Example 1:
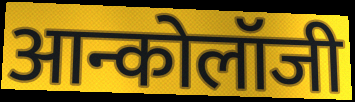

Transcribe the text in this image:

आन्कोलॉजी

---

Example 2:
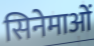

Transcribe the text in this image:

सिनेमाओं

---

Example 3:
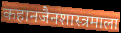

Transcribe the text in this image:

कहानजैनशास्त्रमाला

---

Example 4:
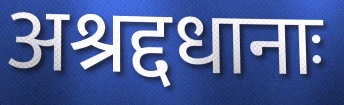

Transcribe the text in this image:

अश्रद्दधानाः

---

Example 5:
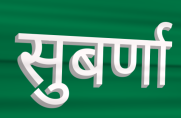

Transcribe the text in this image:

सुबर्णा